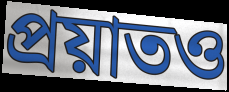
প্রয়াতও